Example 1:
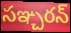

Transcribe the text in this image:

సఞ్చరన్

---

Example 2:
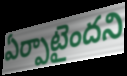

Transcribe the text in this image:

ఏర్పాటైందని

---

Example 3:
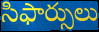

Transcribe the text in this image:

సిఫార్సులు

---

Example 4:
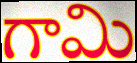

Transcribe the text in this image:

గామి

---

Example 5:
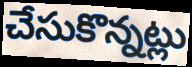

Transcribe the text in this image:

చేసుకొన్నట్లు